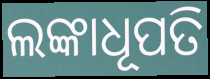
ଲଙ୍କାଧୂପତି